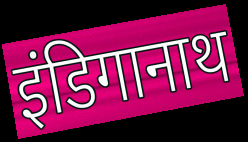
इंडिगानाथ